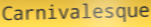
Carnivalesque